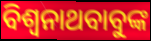
ବିଶ୍ୱନାଥବାବୁଙ୍କ